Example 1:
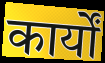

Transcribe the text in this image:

कार्यों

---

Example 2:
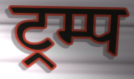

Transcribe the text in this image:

ट्रम्प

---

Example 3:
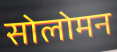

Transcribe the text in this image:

सोलोमन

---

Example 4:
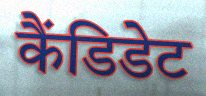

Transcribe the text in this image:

कैंडिडेट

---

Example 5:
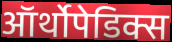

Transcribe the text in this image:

ऑर्थोपेडिक्स